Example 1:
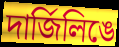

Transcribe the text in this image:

দার্জিলিঙে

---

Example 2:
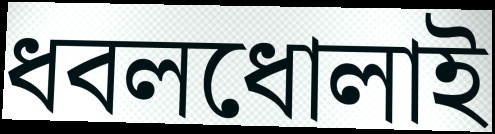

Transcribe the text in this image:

ধবলধোলাই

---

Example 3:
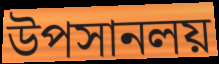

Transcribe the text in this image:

উপসানলয়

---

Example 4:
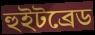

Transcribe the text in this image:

হুইটব্রেড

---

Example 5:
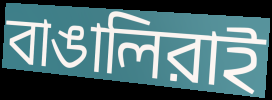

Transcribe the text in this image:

বাঙালিরাই